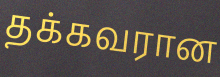
தக்கவரான